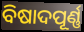
ବିଷାଦପୂର୍ଣ୍ଣ